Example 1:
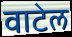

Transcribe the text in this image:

वाटेल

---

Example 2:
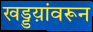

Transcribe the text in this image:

खड्डय़ांवरून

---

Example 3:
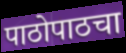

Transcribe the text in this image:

पाठोपाठचा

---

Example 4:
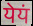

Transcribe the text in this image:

येयं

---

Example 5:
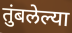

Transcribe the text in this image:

तुंबलेल्या